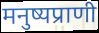
मनुष्यप्राणी